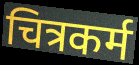
चित्रकर्म